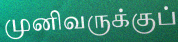
முனிவருக்குப்